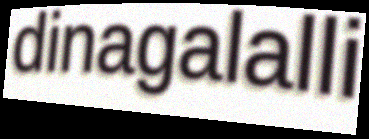
dinagalalli